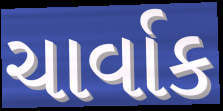
ચાર્વાક